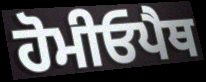
ਹੋਮੀਓਪੈਥ